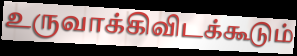
உருவாக்கிவிடக்கூடும்